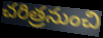
చరిత్రనుంచి